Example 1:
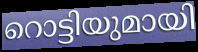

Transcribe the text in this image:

റൊട്ടിയുമായി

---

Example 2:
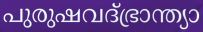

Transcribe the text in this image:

പുരുഷവദ്ഭ്രാന്ത്യാ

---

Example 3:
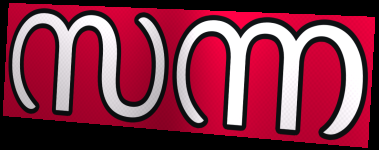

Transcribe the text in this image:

സന്ന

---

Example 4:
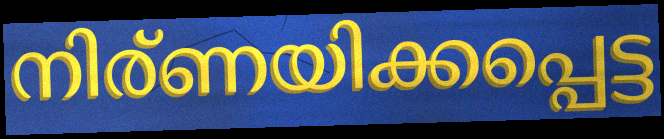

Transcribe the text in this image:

നിര്ണയിക്കപ്പെട്ട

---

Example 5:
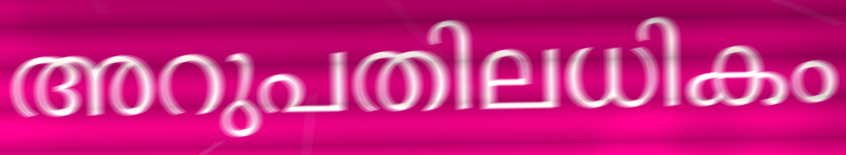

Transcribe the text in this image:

അറുപതിലധികം